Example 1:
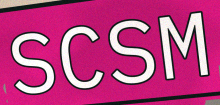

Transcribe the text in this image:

SCSM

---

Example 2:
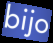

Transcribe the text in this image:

bijo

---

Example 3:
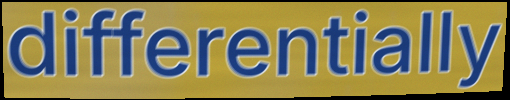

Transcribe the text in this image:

differentially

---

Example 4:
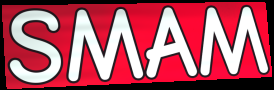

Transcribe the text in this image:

SMAM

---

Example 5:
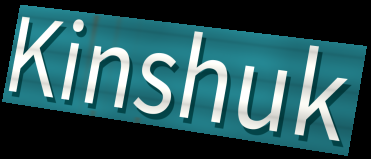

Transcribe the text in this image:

Kinshuk